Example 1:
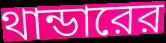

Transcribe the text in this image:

থান্ডারের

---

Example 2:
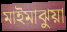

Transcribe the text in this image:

মাইমাঝুয়া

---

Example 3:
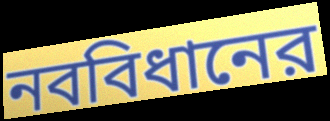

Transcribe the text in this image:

নববিধানের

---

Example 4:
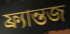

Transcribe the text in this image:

ফ্র্যান্তজ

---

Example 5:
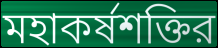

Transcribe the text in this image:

মহাকর্ষশক্তির